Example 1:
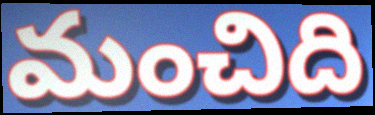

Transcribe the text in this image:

మంచిది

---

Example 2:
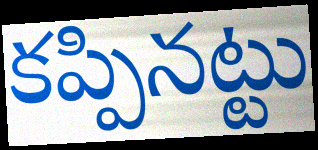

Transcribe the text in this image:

కప్పినట్టు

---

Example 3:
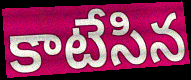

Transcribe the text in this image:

కాటేసిన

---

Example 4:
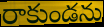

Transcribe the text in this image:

రాకుండను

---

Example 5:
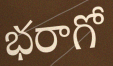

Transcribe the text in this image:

భరాగో